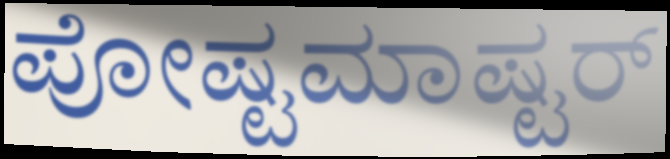
ಪೋಷ್ಟಮಾಷ್ಟರ್